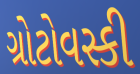
ગ્રોટોવસ્કી